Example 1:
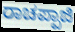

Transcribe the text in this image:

ರಾಚಪ್ಪಾಜಿ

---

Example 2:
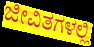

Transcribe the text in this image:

ಜೀವಿತಗಳಲ್ಲಿ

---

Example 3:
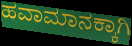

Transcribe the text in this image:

ಹವಾಮಾನಕ್ಕಾಗಿ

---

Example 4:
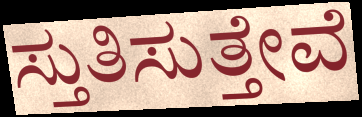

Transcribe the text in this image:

ಸ್ತುತಿಸುತ್ತೇವೆ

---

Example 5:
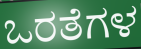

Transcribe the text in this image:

ಒರತೆಗಳ